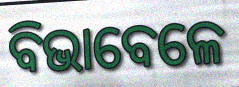
ବିଭାବେଳେ